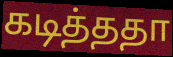
கடித்ததா